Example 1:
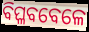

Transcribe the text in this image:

ବିପ୍ଳବବେଳେ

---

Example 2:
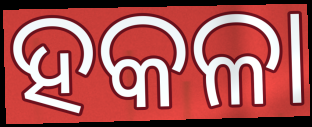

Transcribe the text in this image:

ହକଳା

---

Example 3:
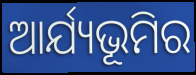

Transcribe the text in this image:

ଆର୍ଯ୍ୟଭୂମିର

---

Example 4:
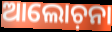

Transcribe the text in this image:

ଆଲୋଚ଼ନା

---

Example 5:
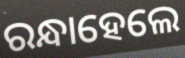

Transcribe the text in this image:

ରନ୍ଧାହେଲେ